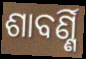
ଶାବର୍ଣ୍ଣି